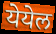
येयेल